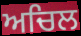
ਅਚਿਲ